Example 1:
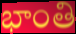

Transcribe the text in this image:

భాంతి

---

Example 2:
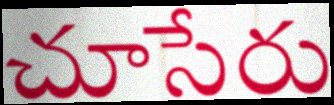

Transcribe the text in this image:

చూసేరు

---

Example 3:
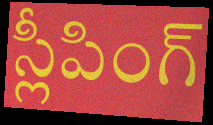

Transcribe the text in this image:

స్లీపింగ్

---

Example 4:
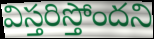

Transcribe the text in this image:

విస్తరిస్తోందని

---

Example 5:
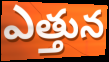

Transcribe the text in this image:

ఎత్తున